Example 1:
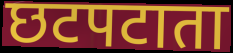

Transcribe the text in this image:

छटपटाता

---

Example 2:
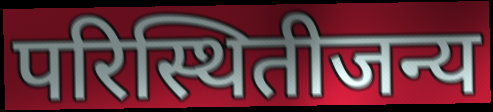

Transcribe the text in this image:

परिस्थितीजन्य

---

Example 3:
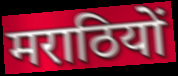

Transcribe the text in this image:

मराठियों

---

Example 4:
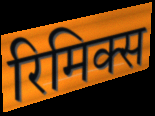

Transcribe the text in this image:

रिमिक्स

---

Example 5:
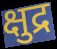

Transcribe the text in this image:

क्षुद्र